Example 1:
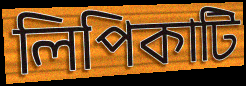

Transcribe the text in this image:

লিপিকাটি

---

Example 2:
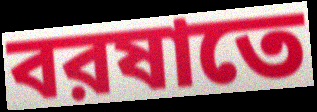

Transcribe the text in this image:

বরষাতে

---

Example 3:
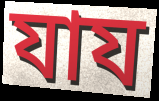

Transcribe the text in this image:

যায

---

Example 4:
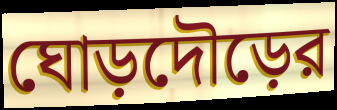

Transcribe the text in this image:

ঘোড়দৌড়ের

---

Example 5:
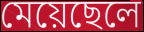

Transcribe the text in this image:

মেয়েছেলে